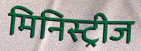
मिनिस्ट्रीज